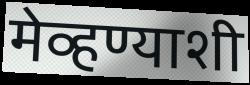
मेव्हण्याशी